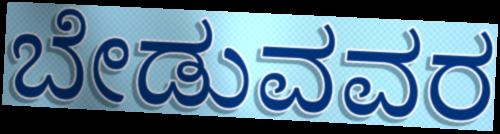
ಬೇಡುವವರ